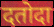
दतोदा